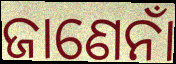
ଜାଣେନାଁ